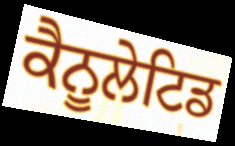
ਕੈਨੂਲੇਟਿਡ